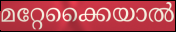
മറ്റേക്കൈയാൽ